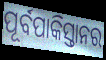
ପୂର୍ବପାକିସ୍ତାନର